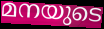
മനയുടെ